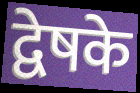
द्वेषके